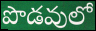
పొడవులో